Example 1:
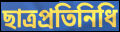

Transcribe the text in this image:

ছাত্রপ্রতিনিধি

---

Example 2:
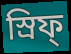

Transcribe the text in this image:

স্রিফ্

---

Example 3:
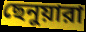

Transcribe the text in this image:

ছেনুয়ারা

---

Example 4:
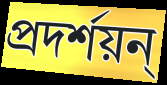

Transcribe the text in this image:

প্রদর্শয়ন্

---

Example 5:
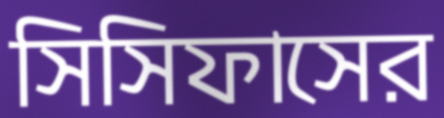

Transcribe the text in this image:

সিসিফাসের